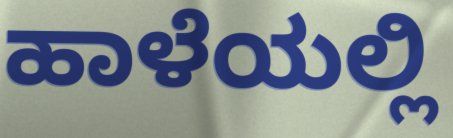
ಹಾಳೆಯಲ್ಲಿ